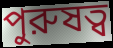
পুরুষত্ব